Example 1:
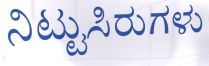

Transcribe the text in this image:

ನಿಟ್ಟುಸಿರುಗಳು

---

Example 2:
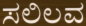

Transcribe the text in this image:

ಸಲಿಲವ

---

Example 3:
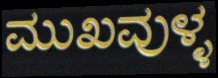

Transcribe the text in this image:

ಮುಖವುಳ್ಳ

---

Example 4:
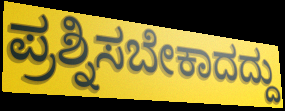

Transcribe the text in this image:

ಪ್ರಶ್ನಿಸಬೇಕಾದದ್ದು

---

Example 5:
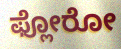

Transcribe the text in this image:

ಫ್ಲೋರೋ